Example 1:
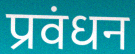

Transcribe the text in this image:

प्रवंधन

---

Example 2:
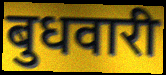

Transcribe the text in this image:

बुधवारी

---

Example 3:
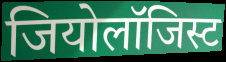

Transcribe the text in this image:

जियोलॉजिस्ट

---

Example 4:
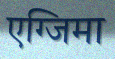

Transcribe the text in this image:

एग्जिमा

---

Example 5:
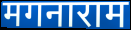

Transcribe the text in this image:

मगनाराम